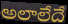
అలాలేదే